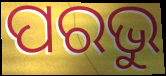
ପରଭୁ